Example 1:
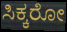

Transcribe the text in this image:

ಸಿಕ್ಕರೋ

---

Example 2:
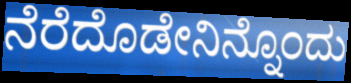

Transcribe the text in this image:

ನೆರೆದೊಡೇನಿನ್ನೊಂದು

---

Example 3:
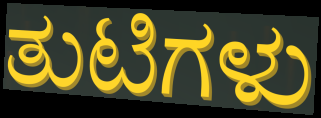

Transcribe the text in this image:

ತುಟಿಗಳು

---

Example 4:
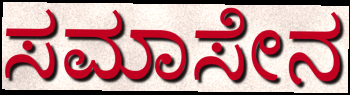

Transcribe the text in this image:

ಸಮಾಸೇನ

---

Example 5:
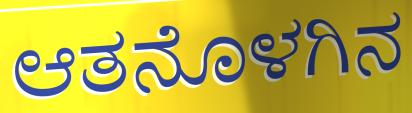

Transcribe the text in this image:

ಆತನೊಳಗಿನ